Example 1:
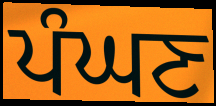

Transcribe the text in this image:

ਪੰਘਣ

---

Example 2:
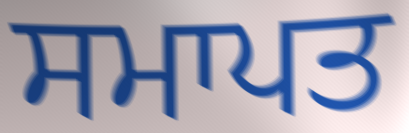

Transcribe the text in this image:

ਸਮਾਪਤ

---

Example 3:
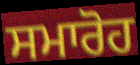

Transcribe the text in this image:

ਸਮਾਰੋਹ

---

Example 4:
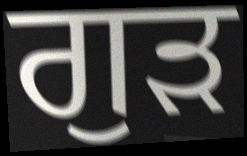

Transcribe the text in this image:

ਗੁੜ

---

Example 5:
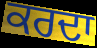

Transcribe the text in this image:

ਕਰਦਾ